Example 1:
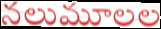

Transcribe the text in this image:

నలుమూలల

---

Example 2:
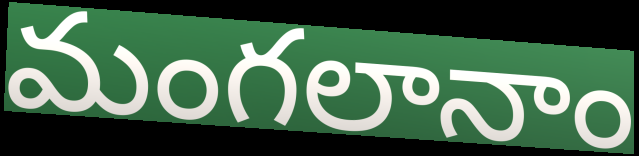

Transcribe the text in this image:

మంగలానాం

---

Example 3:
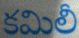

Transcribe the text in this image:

కమిలీ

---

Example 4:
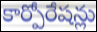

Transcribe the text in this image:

కార్పోరేషన్లు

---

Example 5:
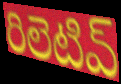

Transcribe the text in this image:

రిలెటివ్